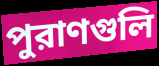
পুরাণগুলি